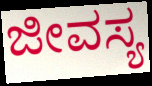
ಜೀವಸ್ಯ